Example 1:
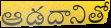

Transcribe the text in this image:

ఆడదానితో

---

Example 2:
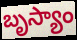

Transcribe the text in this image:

బృస్యాం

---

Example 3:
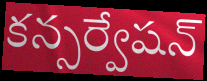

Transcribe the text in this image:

కన్సర్వేషన్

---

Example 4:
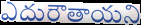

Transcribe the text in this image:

ఎదురౌతాయని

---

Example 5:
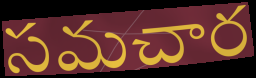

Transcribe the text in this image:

సమచార